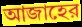
আজাহের